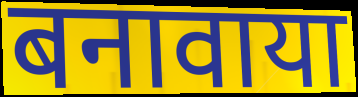
बनावाया